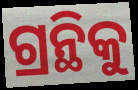
ଗ୍ରନ୍ଥିକୁ